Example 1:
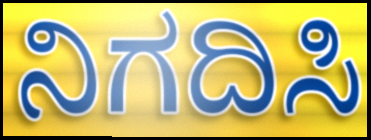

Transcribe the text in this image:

ನಿಗದಿಸಿ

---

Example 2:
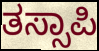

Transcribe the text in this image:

ತಸ್ಸಾಪಿ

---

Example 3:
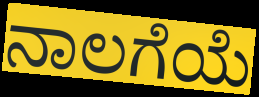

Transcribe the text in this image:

ನಾಲಗೆಯೆ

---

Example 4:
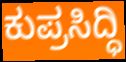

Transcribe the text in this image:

ಕುಪ್ರಸಿದ್ಧಿ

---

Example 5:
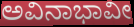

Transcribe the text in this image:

ಅವಿನಾಭಾವೀ